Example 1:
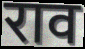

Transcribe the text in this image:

राव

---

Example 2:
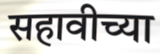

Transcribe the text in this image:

सहावीच्या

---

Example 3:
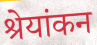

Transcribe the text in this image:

श्रेयांकन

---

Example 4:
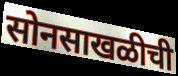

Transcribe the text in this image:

सोनसाखळीची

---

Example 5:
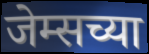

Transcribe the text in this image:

जेम्सच्या